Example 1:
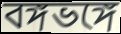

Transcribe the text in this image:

বঙ্গভঙ্গে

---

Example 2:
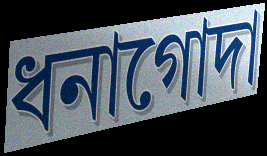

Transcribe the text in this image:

ধনাগোদা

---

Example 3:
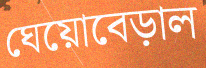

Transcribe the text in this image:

ঘেয়োবেড়াল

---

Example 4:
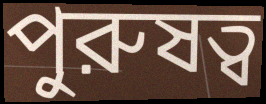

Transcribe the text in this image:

পুরুষত্ব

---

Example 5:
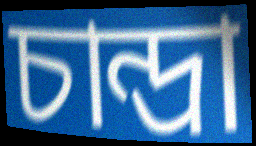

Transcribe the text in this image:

চান্দ্রা